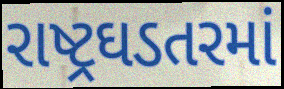
રાષ્ટ્રઘડતરમાં